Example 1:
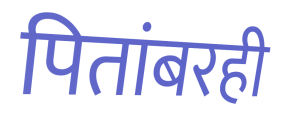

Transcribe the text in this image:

पितांबरही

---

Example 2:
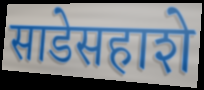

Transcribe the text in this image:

साडेसहाशे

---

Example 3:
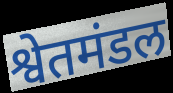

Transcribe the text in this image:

श्वेतमंडल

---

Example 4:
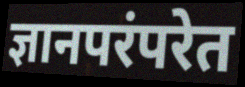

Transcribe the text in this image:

ज्ञानपरंपरेत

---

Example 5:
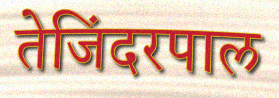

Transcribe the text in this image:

तेजिंदरपाल